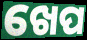
ଖେପ